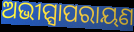
ଅଭୀପ୍ସାପରାୟଣ